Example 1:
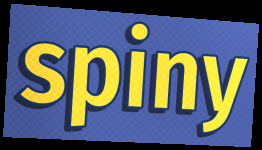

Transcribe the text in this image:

spiny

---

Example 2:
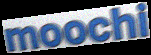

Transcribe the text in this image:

moochi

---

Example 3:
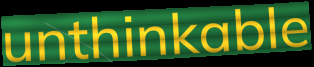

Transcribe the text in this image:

unthinkable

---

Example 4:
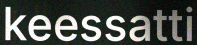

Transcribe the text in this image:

keessatti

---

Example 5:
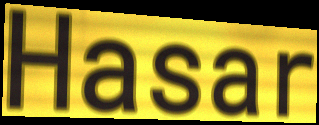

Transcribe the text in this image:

Hasar